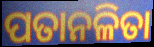
ପତାନଳିତା